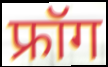
फ्रॉग